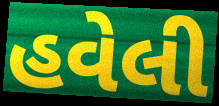
હવેલી